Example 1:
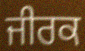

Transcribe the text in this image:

ਜੀਰਕ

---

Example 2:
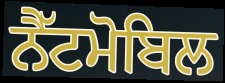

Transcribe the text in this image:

ਨੈੱਟਮੋਬਿਲ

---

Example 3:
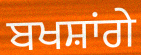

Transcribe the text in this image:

ਬਖਸ਼ਾਂਗੇ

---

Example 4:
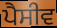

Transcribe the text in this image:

ਪੈਸੀਵ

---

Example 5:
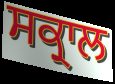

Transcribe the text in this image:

ਸਕ੍ਰਾਲ